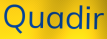
Quadir